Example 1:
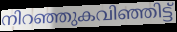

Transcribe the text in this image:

നിറഞ്ഞുകവിഞ്ഞിട്ട്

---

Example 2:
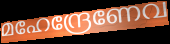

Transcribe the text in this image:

മഹേന്ദ്രേണേവ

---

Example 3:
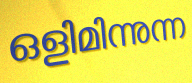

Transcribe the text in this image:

ഒളിമിന്നുന്ന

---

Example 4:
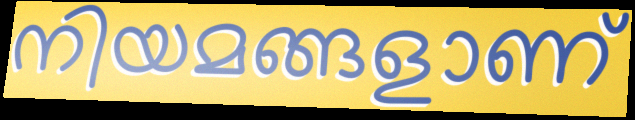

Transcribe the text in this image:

നിയമങ്ങളാണ്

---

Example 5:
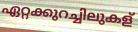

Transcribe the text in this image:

ഏറ്റക്കുറച്ചിലുകള്